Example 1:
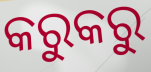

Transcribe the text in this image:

କରୁକରୁ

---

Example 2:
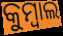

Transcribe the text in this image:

କୁମ୍ବାଲ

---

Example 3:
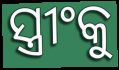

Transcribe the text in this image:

ସ୍ତ୍ରୀଂକୁ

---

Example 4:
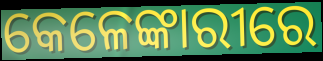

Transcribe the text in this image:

କେଳେଙ୍କାରୀରେ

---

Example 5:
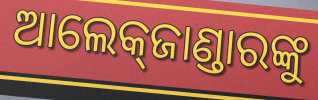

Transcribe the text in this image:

ଆଲେକ୍‌ଜାଣ୍ଡାରଙ୍କୁ